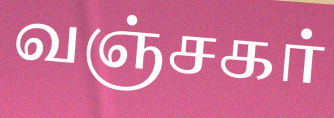
வஞ்சகர்